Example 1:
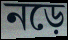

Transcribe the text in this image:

নড়ে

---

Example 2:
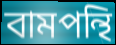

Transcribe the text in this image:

বামপন্থি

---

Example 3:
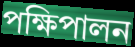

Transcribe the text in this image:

পক্ষিপালন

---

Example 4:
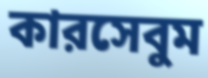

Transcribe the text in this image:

কারসেবুম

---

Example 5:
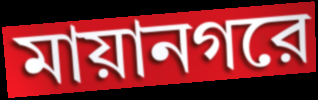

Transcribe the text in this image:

মায়ানগরে